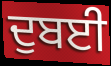
ਦੁਬਈ